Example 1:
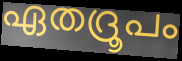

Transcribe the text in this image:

ഏതദ്രൂപം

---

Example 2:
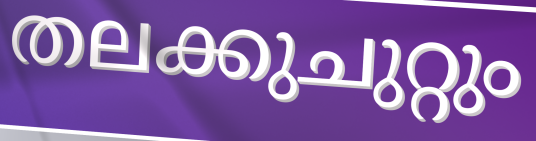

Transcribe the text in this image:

തലക്കുചുറ്റും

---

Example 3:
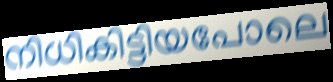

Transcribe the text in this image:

നിധികിട്ടിയപോലെ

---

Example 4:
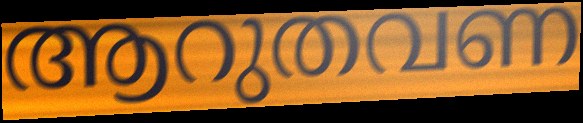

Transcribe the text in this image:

ആറുതവണ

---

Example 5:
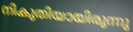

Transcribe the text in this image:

നികുതിയായിരുന്നു